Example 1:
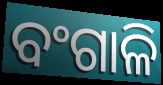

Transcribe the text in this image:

ବଂଗାଳି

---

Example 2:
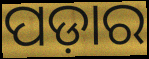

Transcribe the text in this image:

ପଡ଼ାର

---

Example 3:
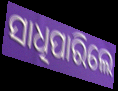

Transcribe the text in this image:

ସାଧିପାରିଲେ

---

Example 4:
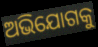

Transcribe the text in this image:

ଅଭିଯୋଗକୁ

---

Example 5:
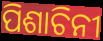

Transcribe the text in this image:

ପିଶାଚିନୀ